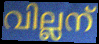
വില്ലന്